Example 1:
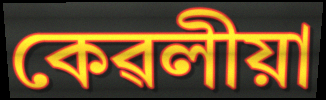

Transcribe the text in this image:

কেৱলীয়া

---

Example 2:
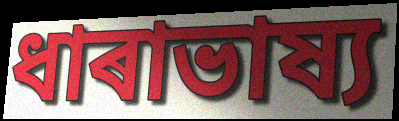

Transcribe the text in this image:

ধাৰাভাষ্য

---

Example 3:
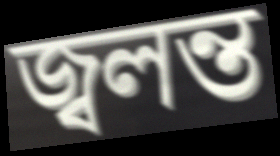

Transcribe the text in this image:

জ্বলন্ত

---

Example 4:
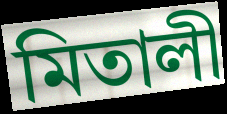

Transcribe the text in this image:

মিতালী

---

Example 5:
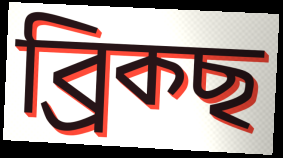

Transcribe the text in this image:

ব্ৰিক্ছ